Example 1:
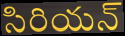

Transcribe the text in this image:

సిరియన్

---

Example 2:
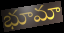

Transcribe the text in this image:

భూమా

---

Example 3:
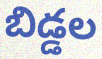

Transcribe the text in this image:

బిడ్డల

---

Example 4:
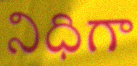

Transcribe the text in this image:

నిధిగా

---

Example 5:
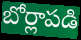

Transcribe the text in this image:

బోర్లాపడి